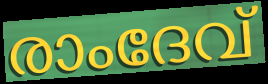
രാംദേവ്